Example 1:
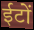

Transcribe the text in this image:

ईटों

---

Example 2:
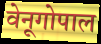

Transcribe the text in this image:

वेनूगोपाल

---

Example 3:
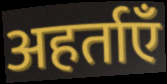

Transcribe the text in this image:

अहर्ताएँ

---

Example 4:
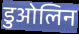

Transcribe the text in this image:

डुओलिन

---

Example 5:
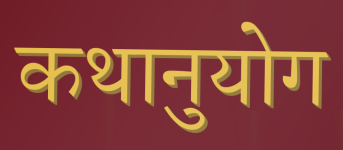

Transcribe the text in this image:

कथानुयोग